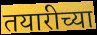
तयारीच्या